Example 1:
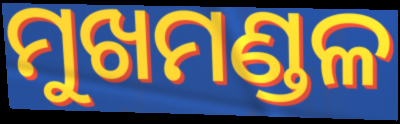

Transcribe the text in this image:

ମୁଖମଣ୍ଡଳ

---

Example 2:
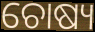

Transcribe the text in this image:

ଚୋଷ୍ୟ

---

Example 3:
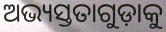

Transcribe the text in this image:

ଅଭ୍ୟସ୍ତତାଗୁଡ଼ାକୁ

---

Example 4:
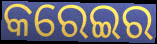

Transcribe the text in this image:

କରେଇର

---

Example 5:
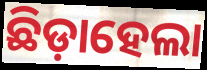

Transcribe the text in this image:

ଛିଡ଼ାହେଲା